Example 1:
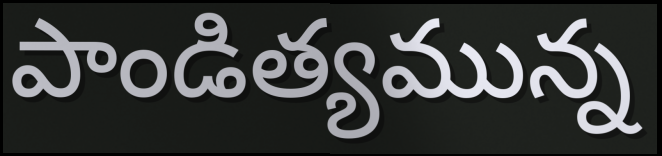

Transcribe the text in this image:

పాండిత్యమున్న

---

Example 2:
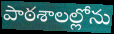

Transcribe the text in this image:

పాఠశాలల్లోను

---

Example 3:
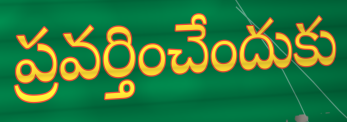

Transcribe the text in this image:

ప్రవర్తించేందుకు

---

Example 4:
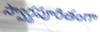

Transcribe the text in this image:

స్వార్థపూరితంగా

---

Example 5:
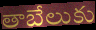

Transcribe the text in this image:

తాబేలుకు